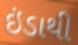
ઇંડાથી